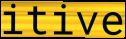
itive